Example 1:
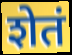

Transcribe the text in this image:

शेतं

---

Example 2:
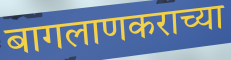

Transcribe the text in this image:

बागलाणकराच्या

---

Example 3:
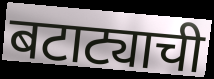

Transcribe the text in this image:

बटाट्याची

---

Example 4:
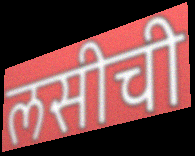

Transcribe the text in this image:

लसीची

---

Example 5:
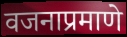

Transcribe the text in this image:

वजनाप्रमाणे